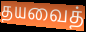
தயவைத்